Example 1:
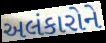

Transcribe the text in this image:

અલંકારોને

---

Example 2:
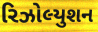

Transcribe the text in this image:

રિઝોલ્યુશન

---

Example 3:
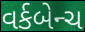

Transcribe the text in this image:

વર્કબેન્ચ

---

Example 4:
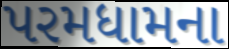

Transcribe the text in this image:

પરમધામના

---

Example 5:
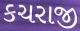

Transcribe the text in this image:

કચરાજી